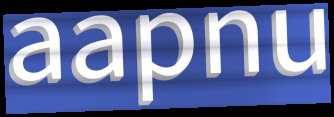
aapnu